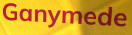
Ganymede